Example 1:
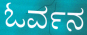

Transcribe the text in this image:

ಓರ್ವನ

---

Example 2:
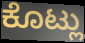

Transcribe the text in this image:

ಕೊಟ್ಲು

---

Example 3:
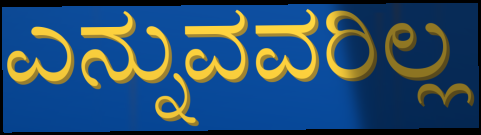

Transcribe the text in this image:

ಎನ್ನುವವರಿಲ್ಲ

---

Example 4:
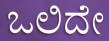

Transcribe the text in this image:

ಒಲಿದೇ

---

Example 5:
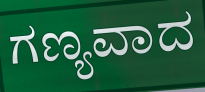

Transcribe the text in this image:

ಗಣ್ಯವಾದ